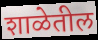
शाळेतील